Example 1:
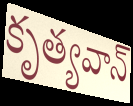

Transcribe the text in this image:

కృత్యవాన్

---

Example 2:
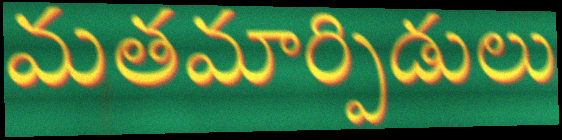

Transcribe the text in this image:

మతమార్పిడులు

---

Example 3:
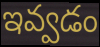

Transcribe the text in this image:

ఇవ్వడం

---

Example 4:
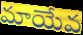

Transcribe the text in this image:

మాయేవ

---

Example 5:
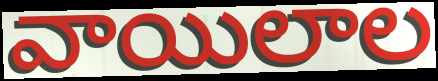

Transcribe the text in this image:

వాయిలాల